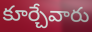
కూర్చేవారు